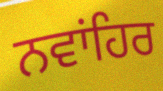
ਨਵਾਂਹਿਰ